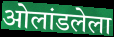
ओलांडलेला